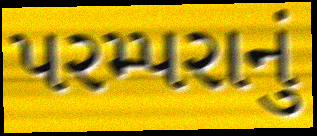
પરમ્પરાનું